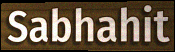
Sabhahit